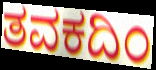
ತವಕದಿಂ